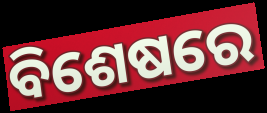
ବିଶେଷରେ